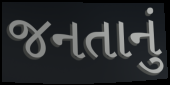
જનતાનું